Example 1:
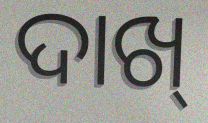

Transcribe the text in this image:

ଦାଖ୍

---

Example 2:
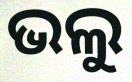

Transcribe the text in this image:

ଭଲୁ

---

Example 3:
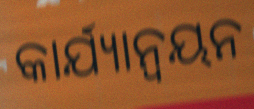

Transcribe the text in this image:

କାର୍ଯ୍ୟାନ୍ବୟନ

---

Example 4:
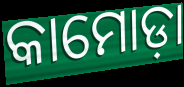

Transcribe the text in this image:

କାମୋଡ଼ା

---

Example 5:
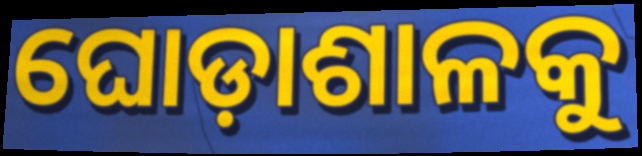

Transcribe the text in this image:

ଘୋଡ଼ାଶାଳକୁ